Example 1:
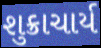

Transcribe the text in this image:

શુક્રાચાર્ય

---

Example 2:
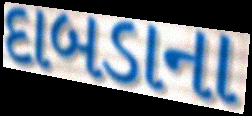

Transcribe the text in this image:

દાબડાના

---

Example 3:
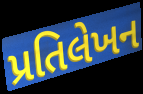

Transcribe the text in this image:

પ્રતિલેખન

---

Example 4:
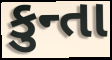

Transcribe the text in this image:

કુન્તા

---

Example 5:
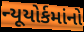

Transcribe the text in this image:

ન્યૂયોર્કમાંનો